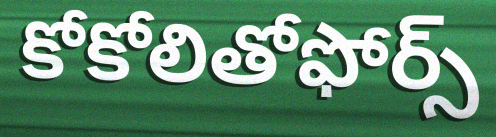
కోకోలితోఫోర్స్